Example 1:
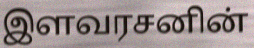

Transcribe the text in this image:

இளவரசனின்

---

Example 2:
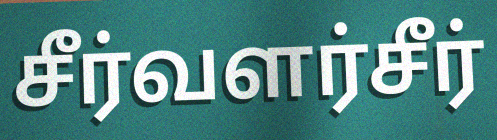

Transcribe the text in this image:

சீர்வளர்சீர்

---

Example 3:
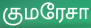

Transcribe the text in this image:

குமரேசா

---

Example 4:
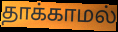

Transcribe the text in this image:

தாக்காமல்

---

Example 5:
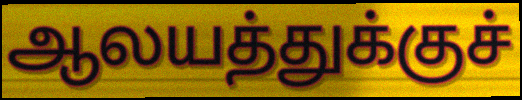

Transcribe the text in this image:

ஆலயத்துக்குச்